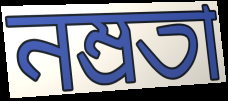
নম্রতা